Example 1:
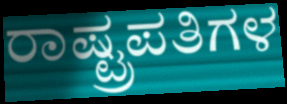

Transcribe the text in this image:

ರಾಷ್ಟ್ರಪತಿಗಳ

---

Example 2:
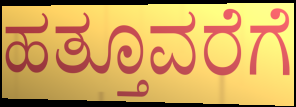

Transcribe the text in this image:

ಹತ್ತೂವರೆಗೆ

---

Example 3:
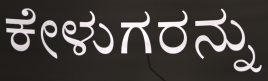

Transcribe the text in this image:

ಕೇಳುಗರನ್ನು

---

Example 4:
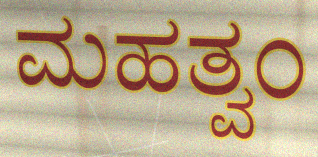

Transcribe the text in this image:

ಮಹತ್ವಂ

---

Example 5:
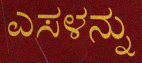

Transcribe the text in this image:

ಎಸಳನ್ನು